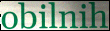
obilnih